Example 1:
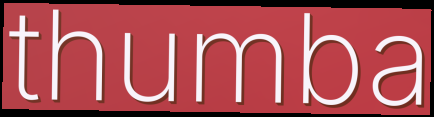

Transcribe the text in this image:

thumba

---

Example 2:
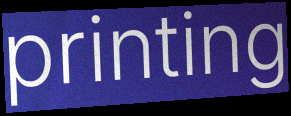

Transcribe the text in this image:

printing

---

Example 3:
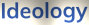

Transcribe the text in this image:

Ideology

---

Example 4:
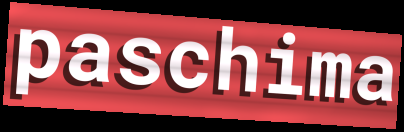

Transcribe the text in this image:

paschima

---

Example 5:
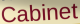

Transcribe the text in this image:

Cabinet